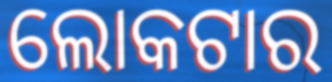
ଲୋକଟାର